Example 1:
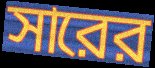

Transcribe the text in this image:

সারের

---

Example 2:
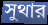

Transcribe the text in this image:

সুথার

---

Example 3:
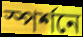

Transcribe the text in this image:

স্পর্শনে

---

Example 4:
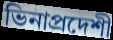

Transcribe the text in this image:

ভিনাপ্রদেশী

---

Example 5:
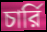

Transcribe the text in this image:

চার্রি